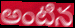
అంటిన